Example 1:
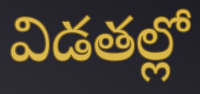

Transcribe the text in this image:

విడతల్లో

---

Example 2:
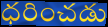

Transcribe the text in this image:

ధరించడు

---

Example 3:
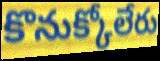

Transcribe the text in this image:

కొనుక్కోలేరు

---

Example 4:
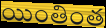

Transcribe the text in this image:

యింతింత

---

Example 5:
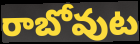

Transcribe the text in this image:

రాబోవుట